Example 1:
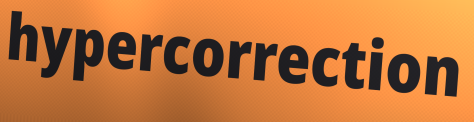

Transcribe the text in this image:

hypercorrection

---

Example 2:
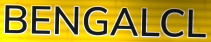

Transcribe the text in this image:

BENGALCL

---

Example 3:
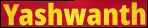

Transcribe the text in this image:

Yashwanth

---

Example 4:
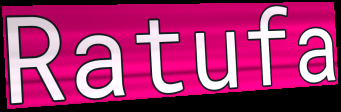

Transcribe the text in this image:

Ratufa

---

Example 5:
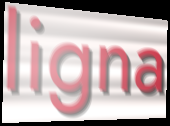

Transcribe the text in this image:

ligna